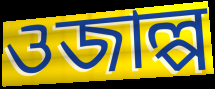
ওজাল্প